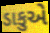
ડાકુએ